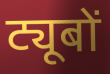
ट्यूबों